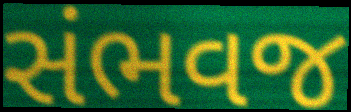
સંભવજ